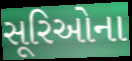
સૂરિઓના